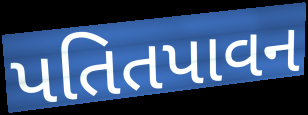
પતિતપાવન